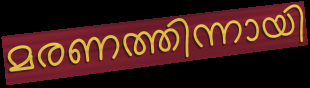
മരണത്തിന്നായി